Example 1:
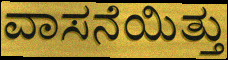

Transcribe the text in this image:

ವಾಸನೆಯಿತ್ತು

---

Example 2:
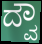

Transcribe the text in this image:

ದ್ವೌ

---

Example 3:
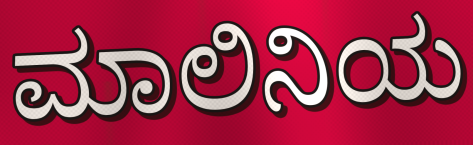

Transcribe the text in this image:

ಮಾಲಿನಿಯ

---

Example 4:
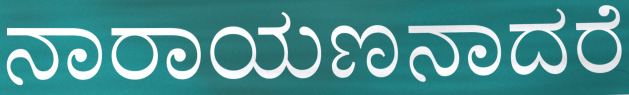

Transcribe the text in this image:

ನಾರಾಯಣನಾದರೆ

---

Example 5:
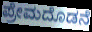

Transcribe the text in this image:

ಪ್ರೇಮದೊಡನೆ